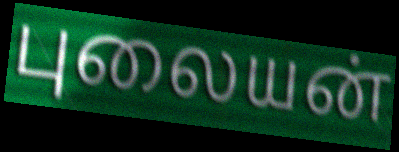
புலையன்